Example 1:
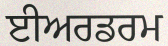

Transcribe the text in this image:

ਈਅਰਡਰਮ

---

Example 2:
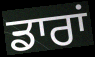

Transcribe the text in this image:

ਡਾਰਾਂ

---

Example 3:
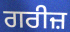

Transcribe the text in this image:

ਗਰੀਜ਼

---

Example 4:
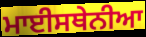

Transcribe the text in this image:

ਮਾਈਸਥੇਨੀਆ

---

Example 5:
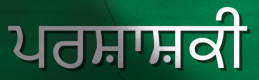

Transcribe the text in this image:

ਪਰਸ਼ਾਸ਼ਕੀ